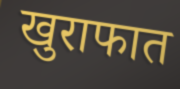
खुराफात